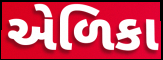
એળિકા